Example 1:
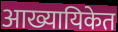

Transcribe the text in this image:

आख्यायिकेत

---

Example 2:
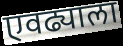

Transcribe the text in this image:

एवढ्याला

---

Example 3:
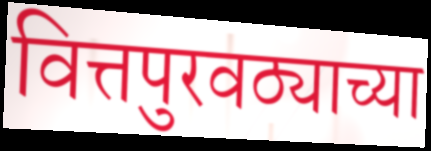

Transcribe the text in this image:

वित्तपुरवठ्याच्या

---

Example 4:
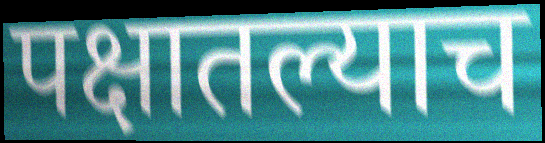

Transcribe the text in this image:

पक्षातल्याच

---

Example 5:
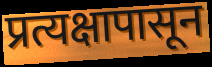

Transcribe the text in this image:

प्रत्यक्षापासून